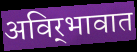
अविर्भावात